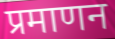
प्रमाणन